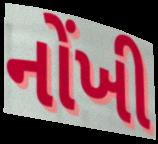
નોંખી